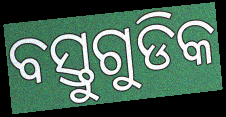
ବସ୍ତୁଗୁଡିକ